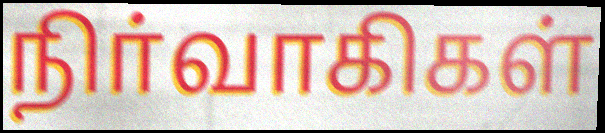
நிர்வாகிகள்